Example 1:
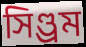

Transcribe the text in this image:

সিণ্ড্ৰম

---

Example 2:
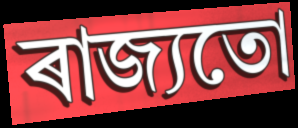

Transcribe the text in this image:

ৰাজ্যতো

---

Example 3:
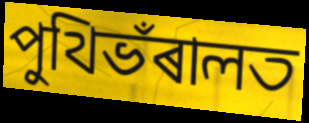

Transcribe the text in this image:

পুথিভঁৰালত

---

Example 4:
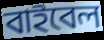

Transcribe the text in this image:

বাইবেল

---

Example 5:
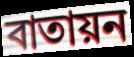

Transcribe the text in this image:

বাতায়ন